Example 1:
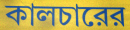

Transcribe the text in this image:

কালচারের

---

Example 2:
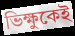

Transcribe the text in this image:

ভিক্ষুকেই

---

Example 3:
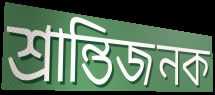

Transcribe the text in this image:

শ্রান্তিজনক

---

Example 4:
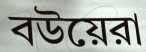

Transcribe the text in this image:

বউয়েরা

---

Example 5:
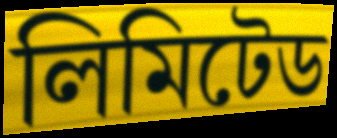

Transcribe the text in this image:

লিমিটেড